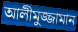
আলীমুজ্জামান